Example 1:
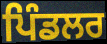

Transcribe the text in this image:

ਪਿੰਡਲਰ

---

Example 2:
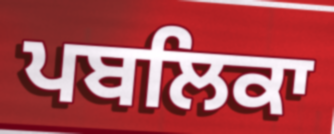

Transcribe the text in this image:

ਪਬਲਿਕਾ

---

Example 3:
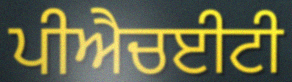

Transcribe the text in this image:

ਪੀਐਚਈਟੀ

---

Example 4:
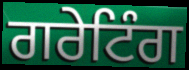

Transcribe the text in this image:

ਗਰੇਟਿੰਗ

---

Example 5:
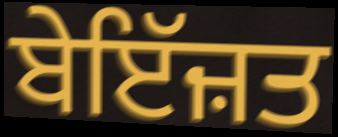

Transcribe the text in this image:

ਬੇਇੱਜ਼ਤ